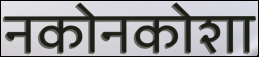
नकोनकोशा